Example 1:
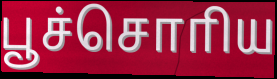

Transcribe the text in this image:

பூச்சொரிய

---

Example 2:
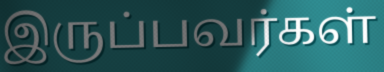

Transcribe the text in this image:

இருப்பவர்கள்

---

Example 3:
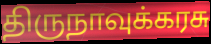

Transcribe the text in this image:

திருநாவுக்கரசு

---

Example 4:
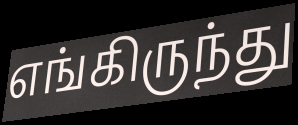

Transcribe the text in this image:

எங்கிருந்து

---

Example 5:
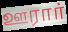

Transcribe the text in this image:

ஊரார்